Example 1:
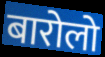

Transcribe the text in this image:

बारोलो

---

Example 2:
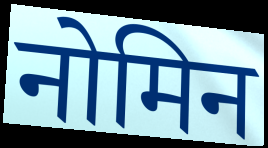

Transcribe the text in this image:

नोमिन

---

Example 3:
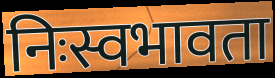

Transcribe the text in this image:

निःस्वभावता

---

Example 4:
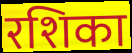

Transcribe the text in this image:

रशिका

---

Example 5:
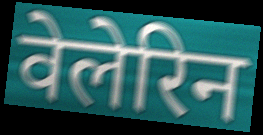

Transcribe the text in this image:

वेलेरिन